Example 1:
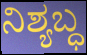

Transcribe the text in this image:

ನಿಶ್ಯಬ್ಧ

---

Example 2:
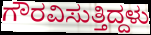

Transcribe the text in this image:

ಗೌರವಿಸುತ್ತಿದ್ದಳು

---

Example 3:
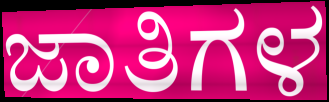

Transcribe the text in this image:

ಜಾತಿಗಳ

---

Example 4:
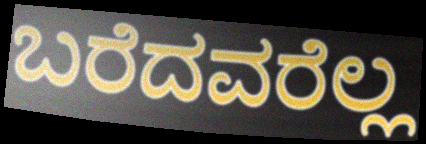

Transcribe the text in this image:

ಬರೆದವರೆಲ್ಲ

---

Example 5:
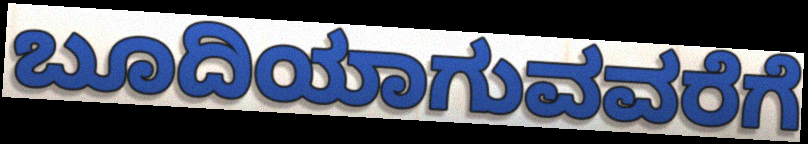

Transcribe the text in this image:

ಬೂದಿಯಾಗುವವರೆಗೆ